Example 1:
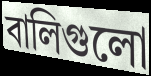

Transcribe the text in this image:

বালিগুলো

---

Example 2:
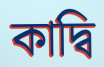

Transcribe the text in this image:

কাদ্বি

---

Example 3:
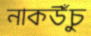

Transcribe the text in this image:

নাকউঁচু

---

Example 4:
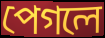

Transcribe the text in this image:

পেগলে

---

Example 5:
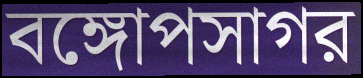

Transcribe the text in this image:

বঙ্গোপসাগর